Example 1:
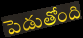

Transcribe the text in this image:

పెడుతోంది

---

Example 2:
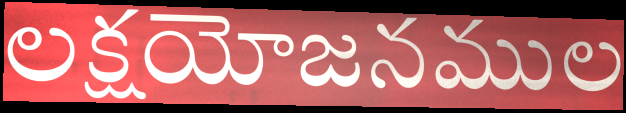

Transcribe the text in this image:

లక్షయోజనముల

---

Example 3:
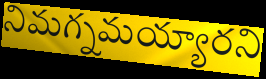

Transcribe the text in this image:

నిమగ్నమయ్యారని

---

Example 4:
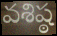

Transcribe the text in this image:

వశిష్ఠ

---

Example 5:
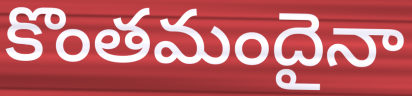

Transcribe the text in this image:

కొంతమందైనా